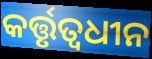
କର୍ତ୍ତୃତ୍ୱଧୀନ